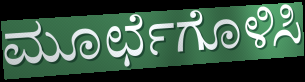
ಮೂರ್ಛೆಗೊಳಿಸಿ